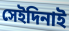
সেইদিনাই